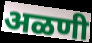
अळणी